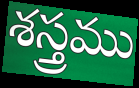
శస్త్రము